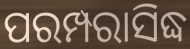
ପରମ୍ପରାସିଦ୍ଧ